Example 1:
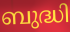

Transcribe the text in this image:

ബുദ്ധി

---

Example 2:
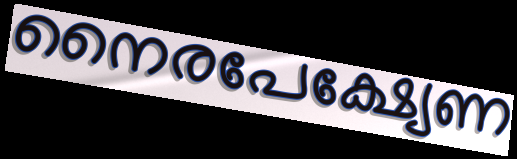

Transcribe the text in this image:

നൈരപേക്ഷ്യേണ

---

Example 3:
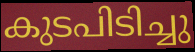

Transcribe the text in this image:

കുടപിടിച്ചു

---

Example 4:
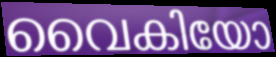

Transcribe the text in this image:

വൈകിയോ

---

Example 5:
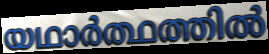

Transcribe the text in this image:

യഥാർത്ഥത്തിൽ